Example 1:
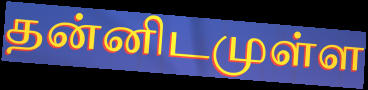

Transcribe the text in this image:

தன்னிடமுள்ள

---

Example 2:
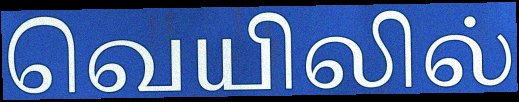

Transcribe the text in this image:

வெயிலில்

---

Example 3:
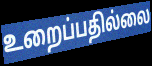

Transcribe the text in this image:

உறைப்பதில்லை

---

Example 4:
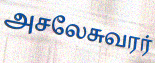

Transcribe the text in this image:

அசலேசுவரர்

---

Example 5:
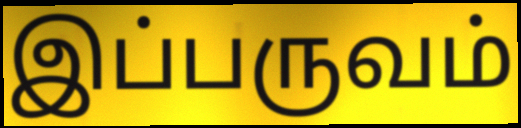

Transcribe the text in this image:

இப்பருவம்